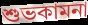
শুভকামনা